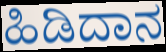
ಹಿಡಿದಾನ